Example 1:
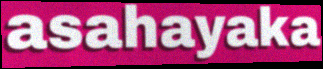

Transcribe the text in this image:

asahayaka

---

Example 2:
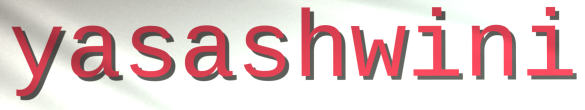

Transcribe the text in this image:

yasashwini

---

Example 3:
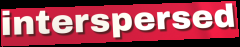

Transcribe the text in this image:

interspersed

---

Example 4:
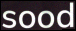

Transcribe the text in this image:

sood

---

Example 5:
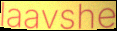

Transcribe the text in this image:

laavshe